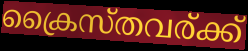
ക്രൈസ്തവര്ക്ക്